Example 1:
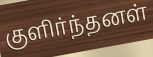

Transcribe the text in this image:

குளிர்ந்தனள்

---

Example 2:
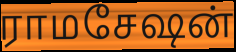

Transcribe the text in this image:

ராமசேஷன்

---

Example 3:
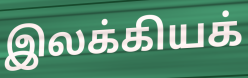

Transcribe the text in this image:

இலக்கியக்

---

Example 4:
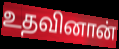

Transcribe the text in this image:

உதவினான்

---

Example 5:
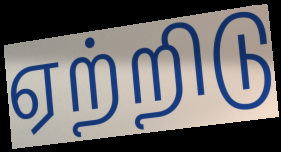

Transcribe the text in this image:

ஏற்றிடு